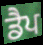
ਡੈਪ